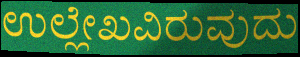
ಉಲ್ಲೇಖವಿರುವುದು